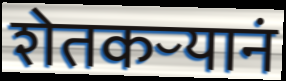
शेतकऱ्यानं